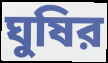
ঘুষির